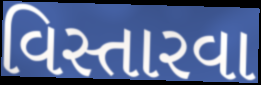
વિસ્તારવા